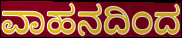
ವಾಹನದಿಂದ